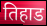
तिहाड